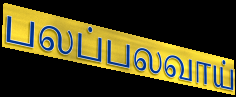
பலப்பலவாய்